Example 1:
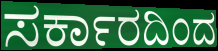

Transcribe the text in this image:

ಸರ್ಕಾರದಿಂದ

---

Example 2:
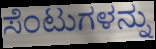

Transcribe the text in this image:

ಸೆಂಟುಗಳನ್ನು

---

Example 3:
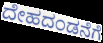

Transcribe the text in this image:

ದೇಹದಂಡನೆಗೆ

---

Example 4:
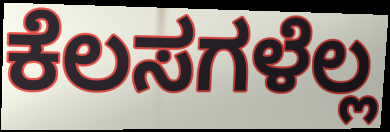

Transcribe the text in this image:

ಕೆಲಸಗಳೆಲ್ಲ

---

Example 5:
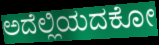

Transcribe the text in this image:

ಅದೆಲ್ಲಿಯದಕೋ